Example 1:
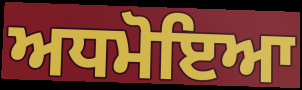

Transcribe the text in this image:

ਅਧਮੋਇਆ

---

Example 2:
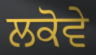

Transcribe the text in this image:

ਲਕੋਵੇ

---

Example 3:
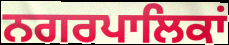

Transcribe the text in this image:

ਨਗਰਪਾਲਿਕਾਂ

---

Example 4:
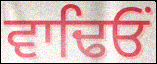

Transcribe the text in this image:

ਵਾਢਿਓਂ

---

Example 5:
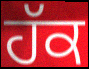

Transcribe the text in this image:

ਹੱਕ